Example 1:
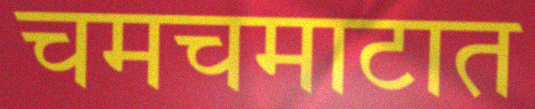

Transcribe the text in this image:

चमचमाटात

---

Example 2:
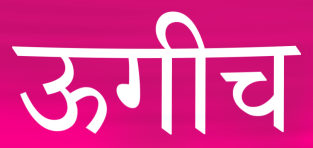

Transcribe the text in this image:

ऊगीच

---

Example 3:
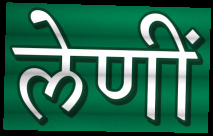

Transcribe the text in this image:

लेणीं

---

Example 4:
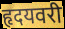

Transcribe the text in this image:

हृदयवरी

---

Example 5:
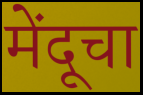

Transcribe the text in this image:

मेंदूचा